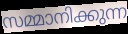
സമ്മാനിക്കുന്ന